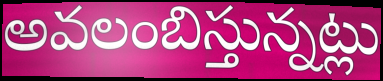
అవలంబిస్తున్నట్లు